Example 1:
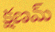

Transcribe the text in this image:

క్షణమ్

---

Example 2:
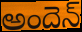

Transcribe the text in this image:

అందెన్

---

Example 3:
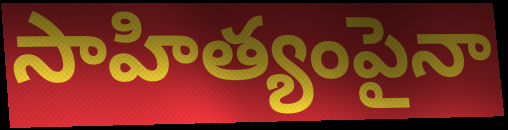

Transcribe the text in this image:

సాహిత్యంపైనా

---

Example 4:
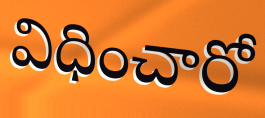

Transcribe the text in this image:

విధించారో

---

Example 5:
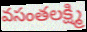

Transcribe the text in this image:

వసంతలక్ష్మి